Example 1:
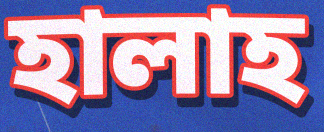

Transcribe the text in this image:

হালাহ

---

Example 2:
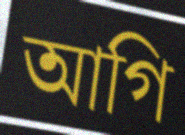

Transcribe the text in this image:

আগি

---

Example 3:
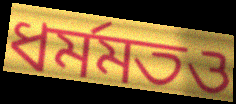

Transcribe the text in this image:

ধর্মমতও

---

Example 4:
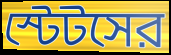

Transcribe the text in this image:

স্টেটসের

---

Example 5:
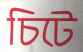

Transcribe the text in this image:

চিটে